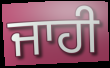
ਜਾਹੀ